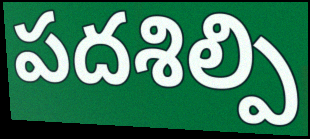
పదశిల్పి